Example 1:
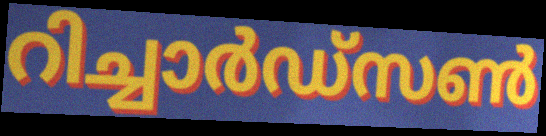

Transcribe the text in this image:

റിച്ചാർഡ്സൺ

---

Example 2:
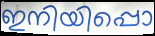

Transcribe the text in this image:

ഇനിയിപ്പൊ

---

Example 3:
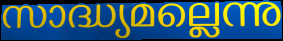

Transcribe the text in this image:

സാദ്ധ്യമല്ലെന്നു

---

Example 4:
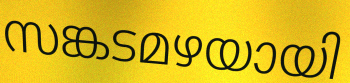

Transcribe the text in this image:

സങ്കടമഴയായി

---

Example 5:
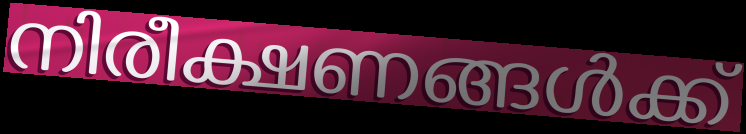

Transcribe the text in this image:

നിരീക്ഷണങ്ങൾക്ക്